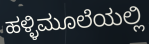
ಹಳ್ಳಿಮೂಲೆಯಲ್ಲಿ